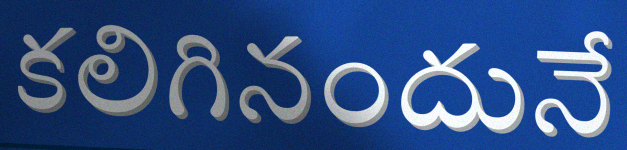
కలిగినందునే